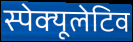
स्पेक्यूलेटिव